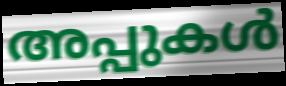
അപ്പുകൾ